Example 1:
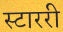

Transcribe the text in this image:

स्टाररी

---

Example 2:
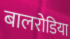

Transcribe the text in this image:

बालरोडिया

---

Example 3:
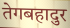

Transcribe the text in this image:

तेगबहादुर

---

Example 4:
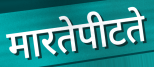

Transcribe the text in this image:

मारतेपीटते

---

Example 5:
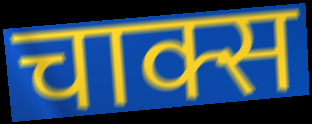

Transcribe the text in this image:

चाक्स